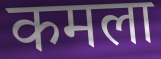
कमला